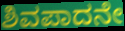
ಶಿವಪಾದನೇ